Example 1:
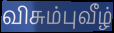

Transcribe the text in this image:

விசும்புவீழ்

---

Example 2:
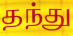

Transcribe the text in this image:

தந்து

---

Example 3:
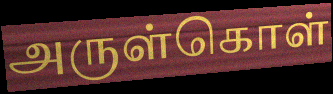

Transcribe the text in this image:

அருள்கொள்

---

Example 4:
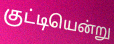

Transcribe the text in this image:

குட்டியென்று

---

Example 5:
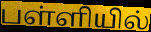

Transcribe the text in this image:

பள்ளியில்